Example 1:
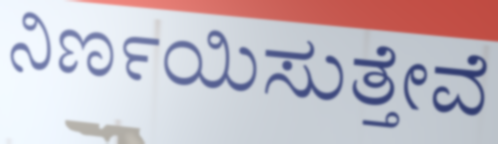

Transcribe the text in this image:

ನಿರ್ಣಯಿಸುತ್ತೇವೆ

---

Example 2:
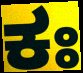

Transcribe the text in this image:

ಕಃ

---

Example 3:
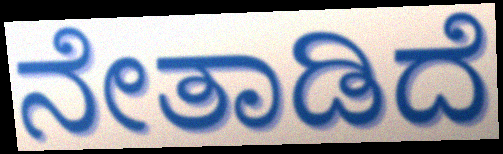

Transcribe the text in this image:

ನೇತಾಡಿದೆ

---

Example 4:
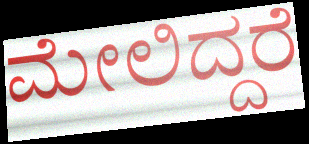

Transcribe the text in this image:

ಮೇಲಿದ್ದರೆ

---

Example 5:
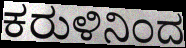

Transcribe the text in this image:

ಕರುಳಿನಿಂದ